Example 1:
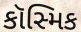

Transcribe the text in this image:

કૉસ્મિક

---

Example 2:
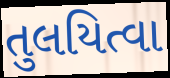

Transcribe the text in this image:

તુલયિત્વા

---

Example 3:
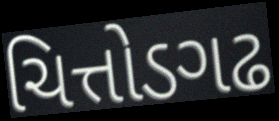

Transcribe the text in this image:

ચિત્તોડગઢ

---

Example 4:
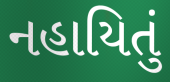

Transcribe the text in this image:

નહાયિતું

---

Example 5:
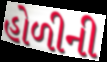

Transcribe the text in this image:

હોળીની